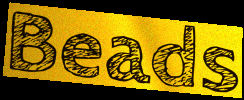
Beads